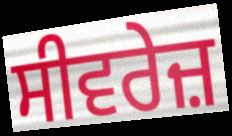
ਸੀਵਰੇਜ਼